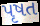
પૃષત